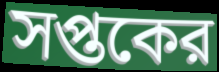
সপ্তকের